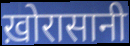
ख़ोरासानी